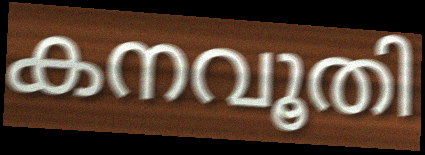
കനവൂതി